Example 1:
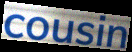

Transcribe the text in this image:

cousin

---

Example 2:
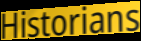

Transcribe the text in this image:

Historians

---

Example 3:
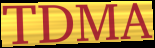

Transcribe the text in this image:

TDMA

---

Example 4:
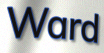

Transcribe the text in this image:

Ward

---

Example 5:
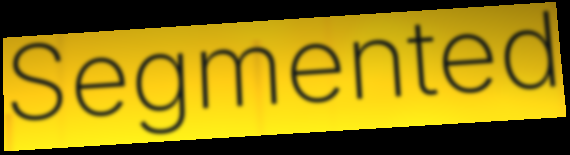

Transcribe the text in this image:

Segmented